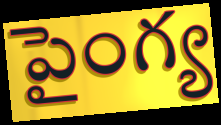
పైంగ్య